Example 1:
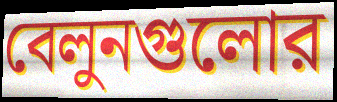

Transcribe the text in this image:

বেলুনগুলোর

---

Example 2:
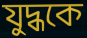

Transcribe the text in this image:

যুদ্ধকে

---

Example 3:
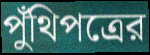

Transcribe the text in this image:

পুঁথিপত্রের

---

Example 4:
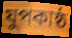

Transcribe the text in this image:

যুপকাষ্ঠ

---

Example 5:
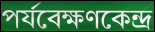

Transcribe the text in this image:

পর্যবেক্ষণকেন্দ্র